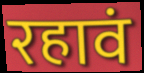
रहावं